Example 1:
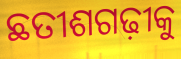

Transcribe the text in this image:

ଛତୀଶଗଢ଼ୀକୁ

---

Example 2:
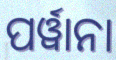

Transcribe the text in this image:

ପର୍ୱାନା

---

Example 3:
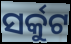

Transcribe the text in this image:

ସର୍କୁଟ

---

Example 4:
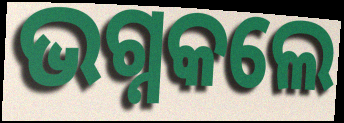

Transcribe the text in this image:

ଭଗ୍ନକଲେ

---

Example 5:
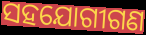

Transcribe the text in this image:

ସହଯୋଗୀଗଣ